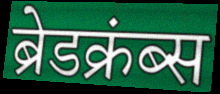
ब्रेडक्रंब्स